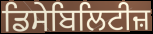
ਡਿਸੇਬਿਲਿਟੀਜ਼